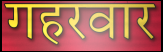
गहरवार